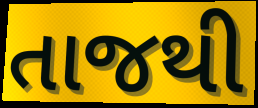
તાજથી